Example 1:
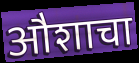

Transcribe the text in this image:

औशाचा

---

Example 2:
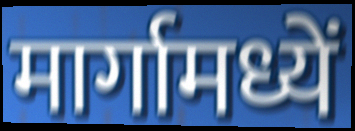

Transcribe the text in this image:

मार्गामध्यें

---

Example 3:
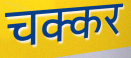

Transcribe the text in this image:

चक्कर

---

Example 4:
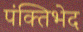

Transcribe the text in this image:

पंक्तिभेद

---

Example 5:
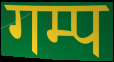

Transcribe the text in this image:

गम्प